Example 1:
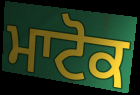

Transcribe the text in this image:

ਮਾਟੋਕ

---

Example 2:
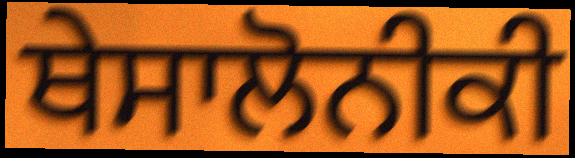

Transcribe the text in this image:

ਥੇਸਾਲੋਨੀਕੀ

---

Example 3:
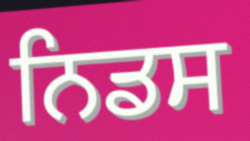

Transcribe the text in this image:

ਨਿਡਸ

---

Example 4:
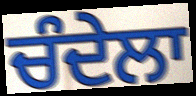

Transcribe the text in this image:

ਚੰਦੇਲਾ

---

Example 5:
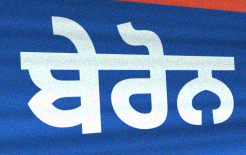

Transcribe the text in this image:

ਬੇਰੋਨ